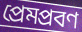
প্রেমপ্রবণ